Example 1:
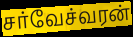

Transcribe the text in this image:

சர்வேச்வரன்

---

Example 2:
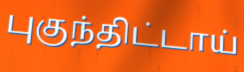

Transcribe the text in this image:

புகுந்திட்டாய்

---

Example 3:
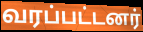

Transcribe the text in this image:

வரப்பட்டனர்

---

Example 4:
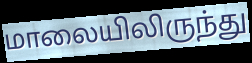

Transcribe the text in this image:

மாலையிலிருந்து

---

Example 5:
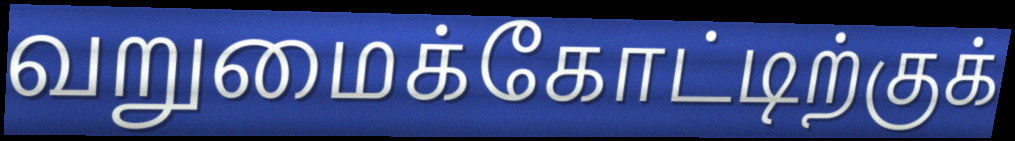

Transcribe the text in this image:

வறுமைக்கோட்டிற்குக்